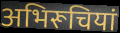
अभिरूचियां